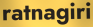
ratnagiri